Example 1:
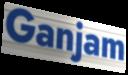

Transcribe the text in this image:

Ganjam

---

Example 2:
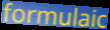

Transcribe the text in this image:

formulaic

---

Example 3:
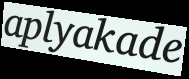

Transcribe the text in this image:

aplyakade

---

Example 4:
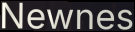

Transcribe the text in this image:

Newnes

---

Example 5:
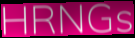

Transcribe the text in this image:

HRNGs